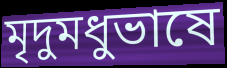
মৃদুমধুভাষে